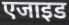
एजाइड